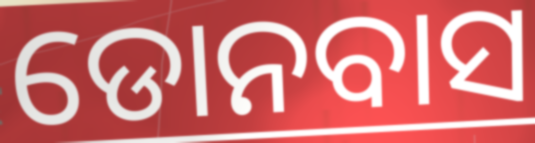
ଡୋନବାସ